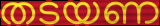
തടയണ